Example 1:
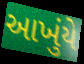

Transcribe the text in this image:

આખુંયે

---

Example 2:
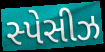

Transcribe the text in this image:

સ્પેસીઝ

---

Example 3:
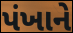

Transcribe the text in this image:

પંખાને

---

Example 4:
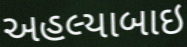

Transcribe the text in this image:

અહલ્યાબાઇ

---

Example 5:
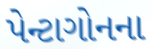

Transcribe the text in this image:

પેન્ટાગોનના